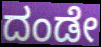
ದಂಡೇ